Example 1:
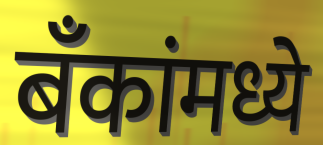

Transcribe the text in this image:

बँकांमध्ये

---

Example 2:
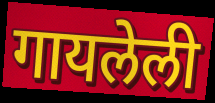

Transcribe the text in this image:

गायलेली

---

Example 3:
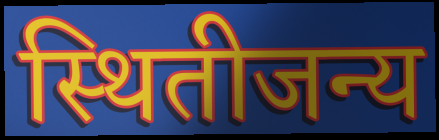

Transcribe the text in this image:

स्थितीजन्य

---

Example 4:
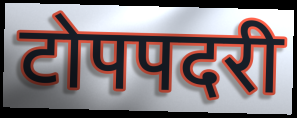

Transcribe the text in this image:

टोपपदरी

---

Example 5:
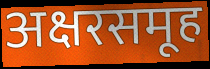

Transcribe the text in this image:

अक्षरसमूह